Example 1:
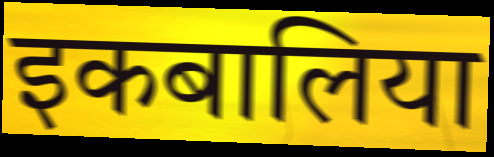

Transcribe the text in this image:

इकबालिया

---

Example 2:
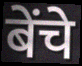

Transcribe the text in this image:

बेंचे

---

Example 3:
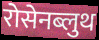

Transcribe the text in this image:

रोसेनब्लुथ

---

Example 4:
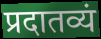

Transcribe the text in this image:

प्रदातव्यं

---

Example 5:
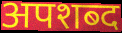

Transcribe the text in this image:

अपशब्‍द